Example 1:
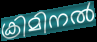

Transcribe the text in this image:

ക്രിമിനൽ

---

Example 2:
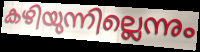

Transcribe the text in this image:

കഴിയുന്നില്ലെന്നും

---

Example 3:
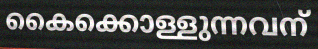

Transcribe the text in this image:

കൈക്കൊള്ളുന്നവന്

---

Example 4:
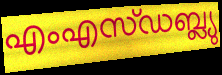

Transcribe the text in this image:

എംഎസ്ഡബ്ല്യു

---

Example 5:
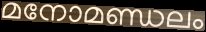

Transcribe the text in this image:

മനോമണ്ഡലം